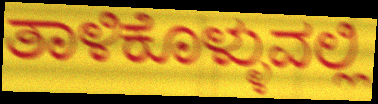
ತಾಳಿಕೊಳ್ಳುವಲ್ಲಿ